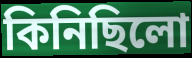
কিনিছিলো